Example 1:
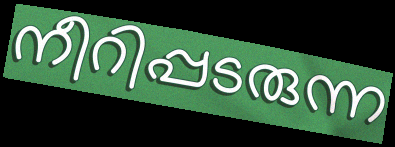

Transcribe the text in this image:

നീറിപ്പടരുന്ന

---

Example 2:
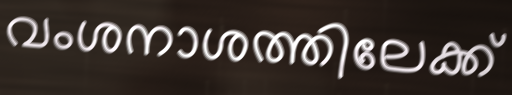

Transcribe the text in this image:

വംശനാശത്തിലേക്ക്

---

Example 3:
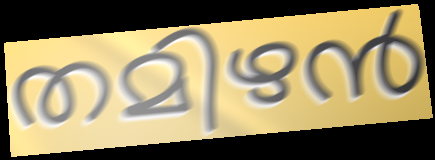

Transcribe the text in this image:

തമിഴൻ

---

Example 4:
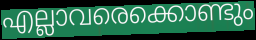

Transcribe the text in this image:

എല്ലാവരെക്കൊണ്ടും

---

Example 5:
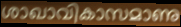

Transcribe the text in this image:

ശാഖാവികാസമാണു